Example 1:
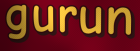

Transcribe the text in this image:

gurun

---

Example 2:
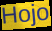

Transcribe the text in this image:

Hojo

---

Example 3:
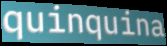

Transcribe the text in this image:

quinquina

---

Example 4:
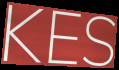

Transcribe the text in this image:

KES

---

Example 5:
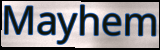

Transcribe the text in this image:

Mayhem